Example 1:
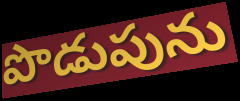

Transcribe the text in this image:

పొడుపును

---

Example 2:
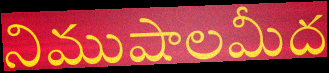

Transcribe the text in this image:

నిముషాలమీద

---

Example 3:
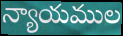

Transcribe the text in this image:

న్యాయముల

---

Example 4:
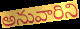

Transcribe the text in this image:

అనువారిని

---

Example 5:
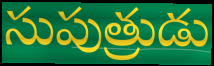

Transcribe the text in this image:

సుపుత్రుడు